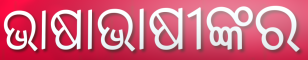
ଭାଷାଭାଷୀଙ୍କର